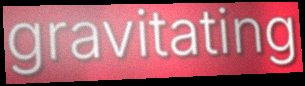
gravitating